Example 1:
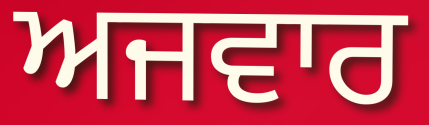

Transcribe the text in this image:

ਅਜਵਾਰ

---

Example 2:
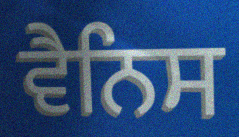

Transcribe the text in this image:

ਵੈਨਿਸ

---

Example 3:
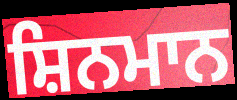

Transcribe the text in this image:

ਸ਼ਿਨਮਾਨ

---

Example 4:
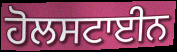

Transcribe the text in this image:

ਹੋਲਸਟਾਈਨ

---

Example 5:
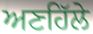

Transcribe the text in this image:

ਅਣਹਿੱਲੇ